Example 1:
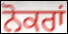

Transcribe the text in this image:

ਨੋਕਰਾਂ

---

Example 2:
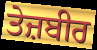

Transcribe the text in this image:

ਤੇਜ਼ਬੀਰ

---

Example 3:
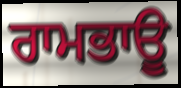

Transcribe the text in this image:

ਰਾਮਭਾਊ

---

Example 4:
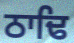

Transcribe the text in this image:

ਠਾਢਿ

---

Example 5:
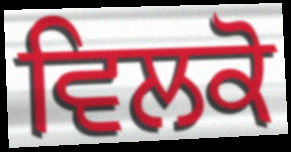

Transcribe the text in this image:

ਵਿਲਕੋ